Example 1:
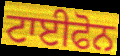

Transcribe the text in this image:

ਟਾਈਫੋਨ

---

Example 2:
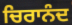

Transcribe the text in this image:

ਚਿਰਾਨੰਦ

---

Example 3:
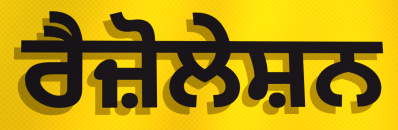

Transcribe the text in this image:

ਰੈਜ਼ੋਲੇਸ਼ਨ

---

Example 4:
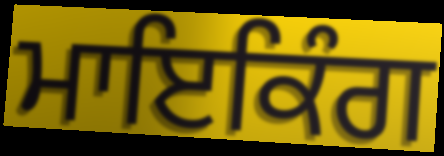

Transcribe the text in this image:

ਮਾਇਕਿੰਗ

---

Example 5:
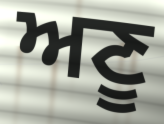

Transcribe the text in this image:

ਅਣੂ